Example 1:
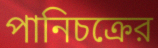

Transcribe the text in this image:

পানিচক্রের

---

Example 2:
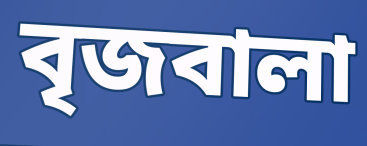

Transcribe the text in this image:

বৃজবালা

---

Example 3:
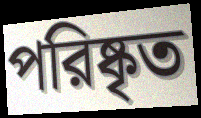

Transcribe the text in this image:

পরিষ্কৃত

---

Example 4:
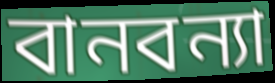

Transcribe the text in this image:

বানবন্যা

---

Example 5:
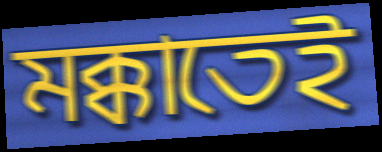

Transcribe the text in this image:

মক্কাতেই